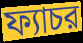
ফ্যাচর